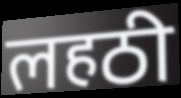
लहठी